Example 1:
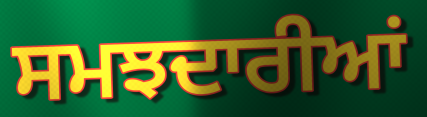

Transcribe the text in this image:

ਸਮਝਦਾਰੀਆਂ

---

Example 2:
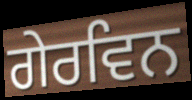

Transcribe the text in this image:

ਗੇਰਵਿਨ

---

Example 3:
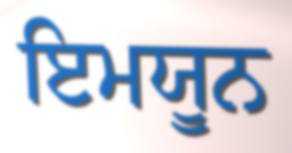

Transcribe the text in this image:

ਇਮਯੂਨ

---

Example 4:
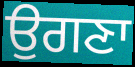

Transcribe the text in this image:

ਉਗਣਾ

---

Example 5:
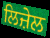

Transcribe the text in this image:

ਲਿਜ਼ੇਲ